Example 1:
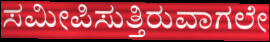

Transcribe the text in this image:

ಸಮೀಪಿಸುತ್ತಿರುವಾಗಲೇ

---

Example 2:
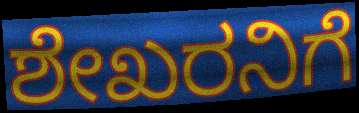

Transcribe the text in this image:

ಶೇಖರನಿಗೆ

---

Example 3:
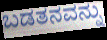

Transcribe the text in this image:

ಬಡತನವನ್ನು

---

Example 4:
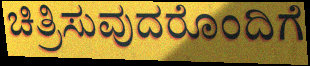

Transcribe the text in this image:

ಚಿತ್ರಿಸುವುದರೊಂದಿಗೆ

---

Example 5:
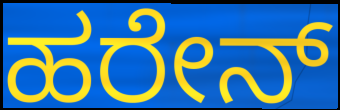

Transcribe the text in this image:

ಹರೇನ್